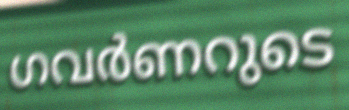
ഗവർണറുടെ